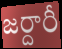
జర్దారీ